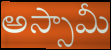
అస్సామీ